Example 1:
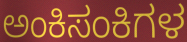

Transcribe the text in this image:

ಅಂಕಿಸಂಕಿಗಳ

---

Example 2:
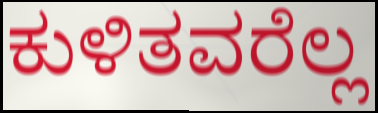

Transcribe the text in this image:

ಕುಳಿತವರೆಲ್ಲ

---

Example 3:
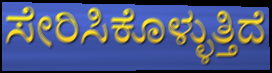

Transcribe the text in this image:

ಸೇರಿಸಿಕೊಳ್ಳುತ್ತಿದೆ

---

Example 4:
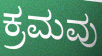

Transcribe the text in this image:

ಕ್ರಮವು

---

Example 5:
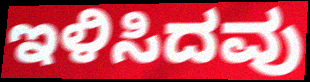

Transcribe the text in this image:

ಇಳಿಸಿದವು